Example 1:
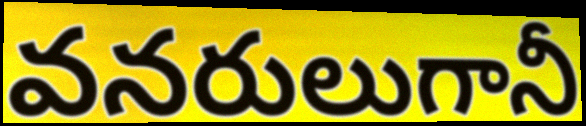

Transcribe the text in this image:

వనరులుగానీ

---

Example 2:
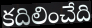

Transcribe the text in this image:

కదిలించేది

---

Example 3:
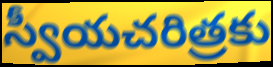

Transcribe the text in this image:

స్వీయచరిత్రకు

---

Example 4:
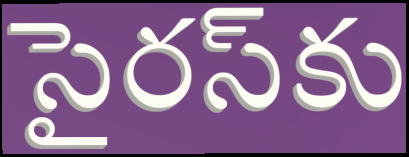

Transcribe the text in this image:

సైరస్‌కు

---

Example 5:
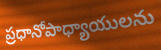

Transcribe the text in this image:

ప్రధానోపాధ్యాయులను